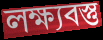
লক্ষ্যবস্তু